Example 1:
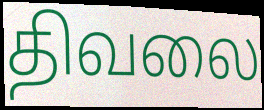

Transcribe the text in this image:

திவலை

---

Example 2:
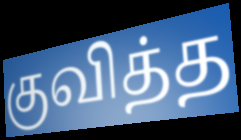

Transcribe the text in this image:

குவித்த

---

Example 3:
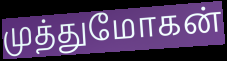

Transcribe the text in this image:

முத்துமோகன்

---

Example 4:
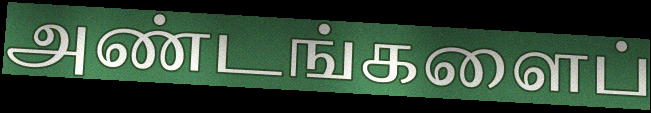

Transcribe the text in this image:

அண்டங்களைப்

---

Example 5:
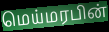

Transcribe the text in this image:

மெய்மரபின்